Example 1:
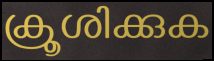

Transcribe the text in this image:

ക്രൂശിക്കുക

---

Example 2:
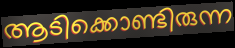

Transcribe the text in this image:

ആടിക്കൊണ്ടിരുന്ന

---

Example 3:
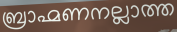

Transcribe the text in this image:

ബ്രാഹ്മണനല്ലാത്ത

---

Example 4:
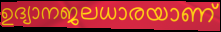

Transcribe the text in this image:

ഉദ്യാനജലധാരയാണ്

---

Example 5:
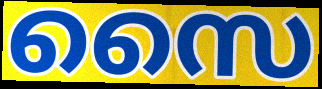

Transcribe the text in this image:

സൈ